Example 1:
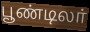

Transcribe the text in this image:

பூண்டிலர்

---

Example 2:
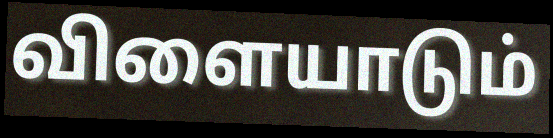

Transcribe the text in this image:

விளையாடும்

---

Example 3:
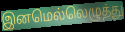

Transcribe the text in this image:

இனமெல்லெழுத்து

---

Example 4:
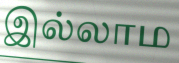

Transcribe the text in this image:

இல்லாம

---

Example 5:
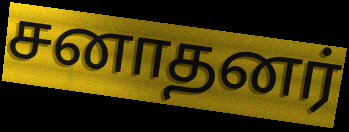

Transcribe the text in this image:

சனாதனர்